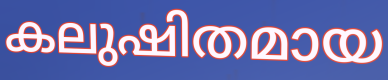
കലുഷിതമായ